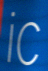
ic